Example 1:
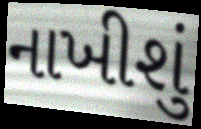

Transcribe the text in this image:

નાખીશું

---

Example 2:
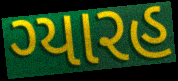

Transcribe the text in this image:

ગ્યારહ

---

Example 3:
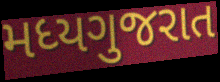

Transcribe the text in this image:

મધ્યગુજરાત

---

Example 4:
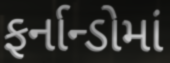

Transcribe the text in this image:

ફર્નાન્ડોમાં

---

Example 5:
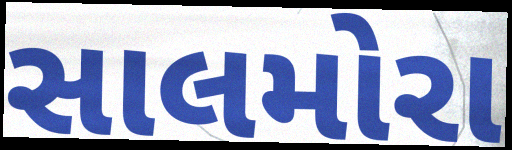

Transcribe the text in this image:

સાલમોરા